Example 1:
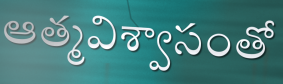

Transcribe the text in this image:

ఆత్మవిశ్వాసంతో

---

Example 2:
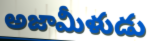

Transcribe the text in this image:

అజామీళుడు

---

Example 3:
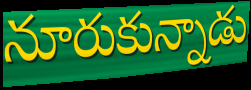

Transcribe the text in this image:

నూరుకున్నాడు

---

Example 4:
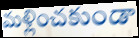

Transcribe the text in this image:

మళ్లించకుండా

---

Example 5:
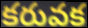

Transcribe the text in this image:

కరువక